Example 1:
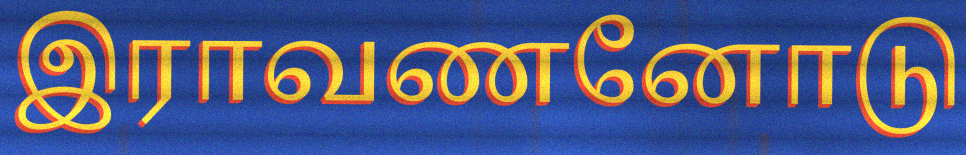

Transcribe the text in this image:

இராவணனோடு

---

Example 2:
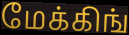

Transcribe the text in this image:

மேக்கிங்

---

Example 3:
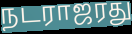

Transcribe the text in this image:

நடராஜரது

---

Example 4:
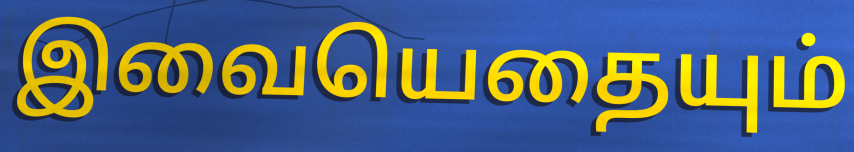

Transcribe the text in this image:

இவையெதையும்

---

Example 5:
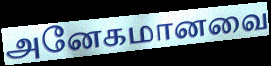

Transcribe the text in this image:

அனேகமானவை